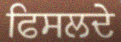
ਫਿਸਲਦੇ